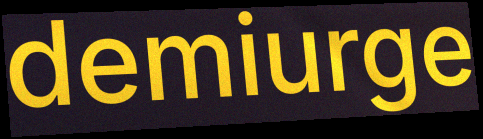
demiurge